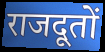
राजदूतों